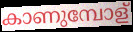
കാണുമ്പോള്